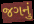
જગનું